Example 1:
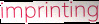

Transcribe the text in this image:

imprinting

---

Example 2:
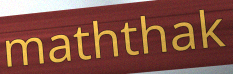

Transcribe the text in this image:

maththak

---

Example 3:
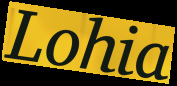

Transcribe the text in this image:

Lohia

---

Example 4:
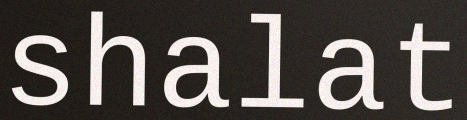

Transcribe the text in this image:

shalat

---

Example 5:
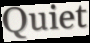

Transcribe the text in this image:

Quiet